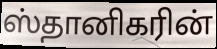
ஸ்தானிகரின்